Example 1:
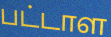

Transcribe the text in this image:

பட்டாள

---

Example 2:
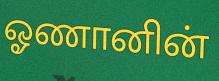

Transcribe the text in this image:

ஓணானின்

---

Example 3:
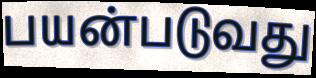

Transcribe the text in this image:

பயன்படுவது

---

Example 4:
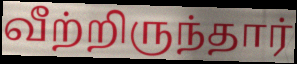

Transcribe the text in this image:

வீற்றிருந்தார்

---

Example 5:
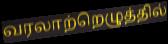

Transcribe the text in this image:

வரலாற்றெழுத்தில்